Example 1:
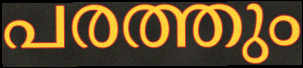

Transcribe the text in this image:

പരത്തും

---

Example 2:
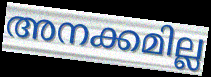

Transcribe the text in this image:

അനക്കമില്ല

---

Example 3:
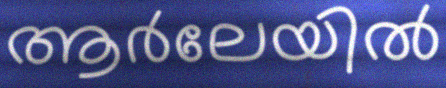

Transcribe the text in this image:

ആർലേയിൽ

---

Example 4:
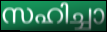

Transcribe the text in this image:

സഹിച്ചാ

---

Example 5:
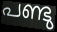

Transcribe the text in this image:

പണ്ടു